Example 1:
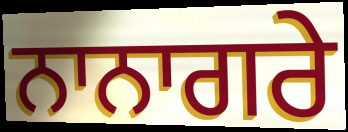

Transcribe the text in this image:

ਨਾਨਾਗਰੇ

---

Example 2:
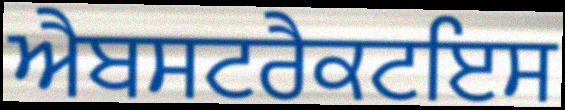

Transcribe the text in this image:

ਐਬਸਟਰੈਕਟਇਸ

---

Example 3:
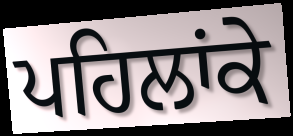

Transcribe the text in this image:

ਪਹਿਲਾਂਕੇ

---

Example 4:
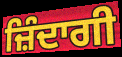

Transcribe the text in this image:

ਜ਼ਿੰਦਾਗੀ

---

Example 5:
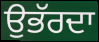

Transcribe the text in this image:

ਉਭੱਰਦਾ